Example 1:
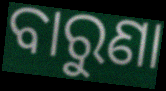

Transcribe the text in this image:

ବାରୁଣା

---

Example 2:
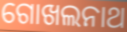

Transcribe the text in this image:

ଗୋଖଲନାଥ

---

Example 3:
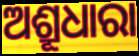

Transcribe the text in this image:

ଅଶ୍ରୂଧାରା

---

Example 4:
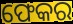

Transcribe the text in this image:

ଫେକର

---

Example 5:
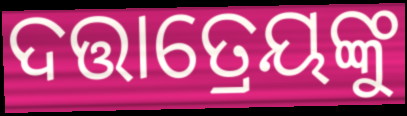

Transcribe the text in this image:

ଦତ୍ତାତ୍ରେୟଙ୍କୁ